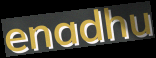
enadhu